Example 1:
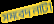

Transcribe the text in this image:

সমবেদনাটা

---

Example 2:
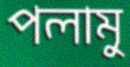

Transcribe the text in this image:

পলামু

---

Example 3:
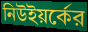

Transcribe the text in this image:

নিউইয়র্কের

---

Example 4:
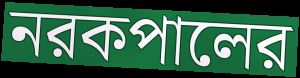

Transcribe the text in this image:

নরকপালের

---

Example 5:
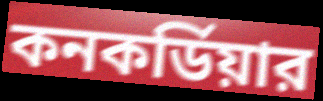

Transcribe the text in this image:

কনকর্ডিয়ার